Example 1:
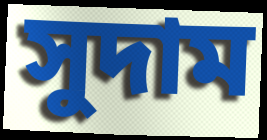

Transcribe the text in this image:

সুদাম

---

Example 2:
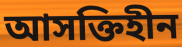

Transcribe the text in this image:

আসক্তিহীন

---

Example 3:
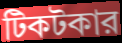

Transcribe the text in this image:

টিকটকার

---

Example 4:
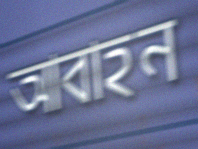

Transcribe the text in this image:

আবাহন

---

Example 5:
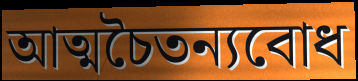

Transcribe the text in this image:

আত্মচৈতন্যবোধ